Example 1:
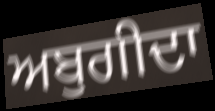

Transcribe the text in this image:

ਅਬੁਗੀਦਾ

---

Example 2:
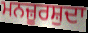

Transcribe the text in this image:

ਮਨਜ਼ੂਰਸ਼ੁਦਾ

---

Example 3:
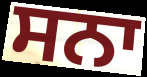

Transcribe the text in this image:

ਸਨਾ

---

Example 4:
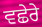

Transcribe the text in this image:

ਵਛੇਰੇ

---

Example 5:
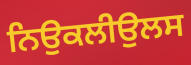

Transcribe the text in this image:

ਨਿਉਕਲੀਉਲਸ